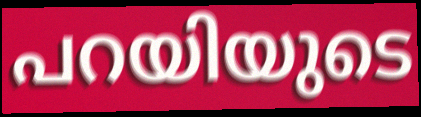
പറയിയുടെ